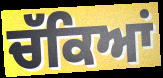
ਚੱਕਿਆਂ